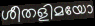
ശീതളിമയോ